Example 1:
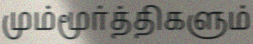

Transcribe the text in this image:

மும்மூர்த்திகளும்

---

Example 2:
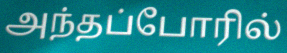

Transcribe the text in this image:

அந்தப்போரில்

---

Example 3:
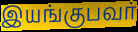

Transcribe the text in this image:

இயங்குபவர்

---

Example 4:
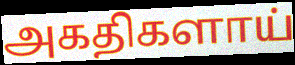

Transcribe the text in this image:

அகதிகளாய்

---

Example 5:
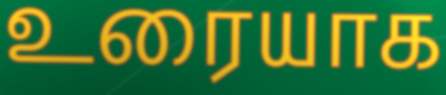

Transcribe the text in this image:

உரையாக